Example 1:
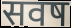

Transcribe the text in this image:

सवष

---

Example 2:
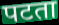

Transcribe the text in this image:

पटता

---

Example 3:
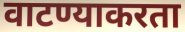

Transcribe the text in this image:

वाटण्याकरता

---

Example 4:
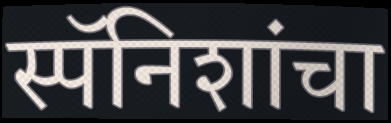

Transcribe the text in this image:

स्पॅनिशांचा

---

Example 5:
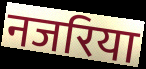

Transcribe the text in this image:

नजरिया